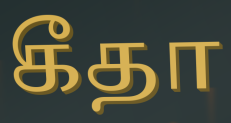
கீதா